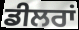
ਡੀਲਰਾਂ